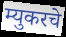
म्युकरचे